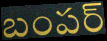
బంపర్